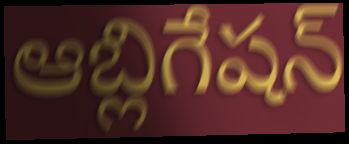
ఆబ్లిగేషన్